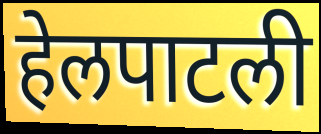
हेलपाटली